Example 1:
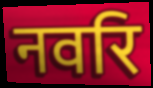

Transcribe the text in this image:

नवरि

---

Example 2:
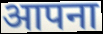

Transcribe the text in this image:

आपना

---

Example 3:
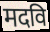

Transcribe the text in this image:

मदवि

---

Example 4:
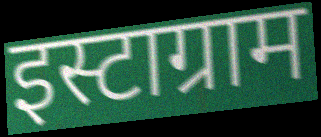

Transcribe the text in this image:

इस्टाग्राम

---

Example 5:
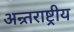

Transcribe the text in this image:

अन्र्तराष्ट्रीय